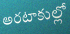
అరటాకుల్లో